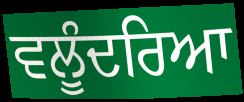
ਵਲੂੰਦਰਿਆ